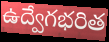
ఉద్వేగభరిత